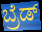
ಬ್ರೆಡ್